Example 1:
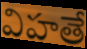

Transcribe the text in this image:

విహతే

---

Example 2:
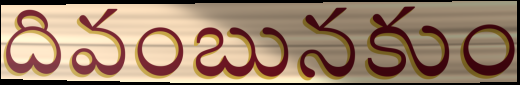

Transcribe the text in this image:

దివంబునకుం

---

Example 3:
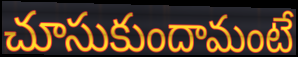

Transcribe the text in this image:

చూసుకుందామంటే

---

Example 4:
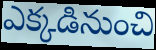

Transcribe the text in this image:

ఎక్కడినుంచి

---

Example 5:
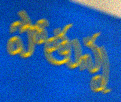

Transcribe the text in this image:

పోతున్న